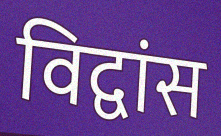
विद्वांस